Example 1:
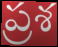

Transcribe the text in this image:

ప్రశ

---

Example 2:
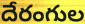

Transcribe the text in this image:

దేరంగుల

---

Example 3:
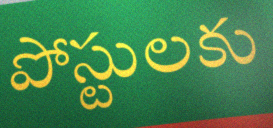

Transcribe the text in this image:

పోస్టులకు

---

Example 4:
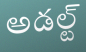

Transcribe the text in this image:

అడల్ట్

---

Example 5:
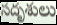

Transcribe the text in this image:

సదృశులు